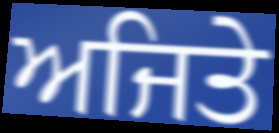
ਅਜਿਤੇ